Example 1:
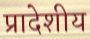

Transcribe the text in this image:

प्रादेशीय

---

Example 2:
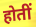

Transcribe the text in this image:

होतीं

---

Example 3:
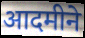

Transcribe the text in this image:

आदमीने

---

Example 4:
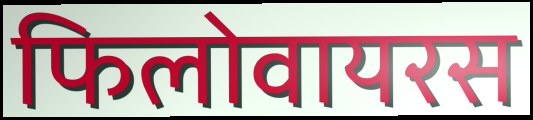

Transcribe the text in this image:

फिलोवायरस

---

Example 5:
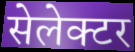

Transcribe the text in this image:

सेलेक्टर